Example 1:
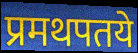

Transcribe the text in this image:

प्रमथपतये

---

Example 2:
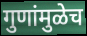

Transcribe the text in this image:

गुणांमुळेच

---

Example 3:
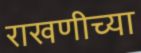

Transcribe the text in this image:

राखणीच्या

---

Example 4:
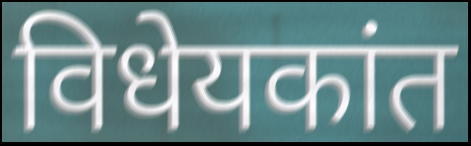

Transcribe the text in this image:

विधेयकांत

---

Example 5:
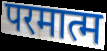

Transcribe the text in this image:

परमात्म